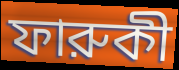
ফারুকী